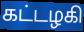
கட்டழகி